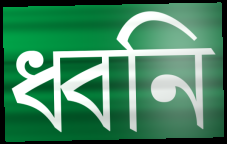
ধ্বনি